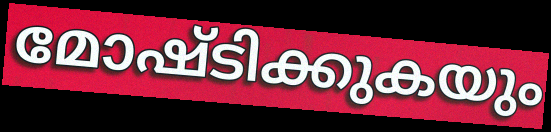
മോഷ്ടിക്കുകയും